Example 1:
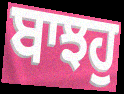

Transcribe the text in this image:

ਬਾਝਹੁ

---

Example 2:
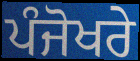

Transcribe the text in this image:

ਪੰਜੋਖਰੇ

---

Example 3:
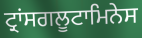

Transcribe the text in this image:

ਟ੍ਰਾਂਸਗਲੂਟਾਮਿਨੇਸ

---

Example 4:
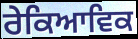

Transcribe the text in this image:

ਰੇਕਿਆਵਿਕ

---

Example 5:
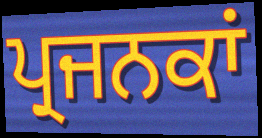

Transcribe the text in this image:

ਪ੍ਰਜਨਕਾਂ